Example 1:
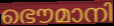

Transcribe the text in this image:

ഭൌമാനി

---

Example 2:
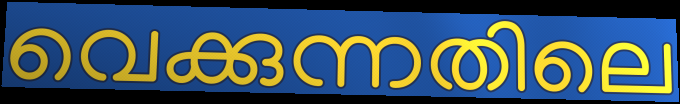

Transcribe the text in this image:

വെക്കുന്നതിലെ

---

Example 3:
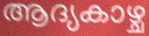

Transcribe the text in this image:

ആദ്യകാഴ്ച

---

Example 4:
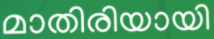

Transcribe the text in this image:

മാതിരിയായി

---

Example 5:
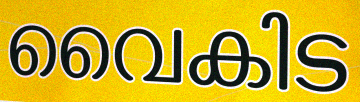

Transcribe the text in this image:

വൈകിട